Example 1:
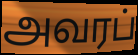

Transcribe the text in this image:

அவரப்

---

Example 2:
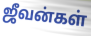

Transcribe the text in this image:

ஜீவன்கள்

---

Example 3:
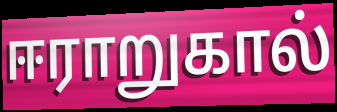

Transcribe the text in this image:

ஈராறுகால்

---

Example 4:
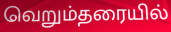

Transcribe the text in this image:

வெறும்தரையில்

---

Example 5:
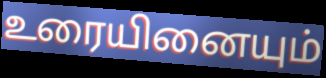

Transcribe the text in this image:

உரையினையும்